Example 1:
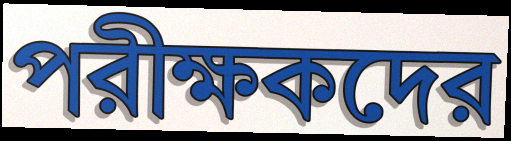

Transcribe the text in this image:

পরীক্ষকদের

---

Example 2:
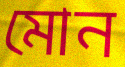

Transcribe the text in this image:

মোন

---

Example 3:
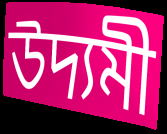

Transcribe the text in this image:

উদ্যমী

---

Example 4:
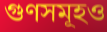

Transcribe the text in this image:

গুণসমূহও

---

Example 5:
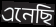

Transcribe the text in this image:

এনেছি